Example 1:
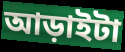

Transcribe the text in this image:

আড়াইটা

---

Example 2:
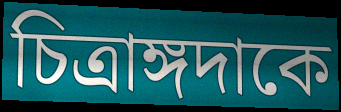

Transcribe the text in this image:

চিত্রাঙ্গদাকে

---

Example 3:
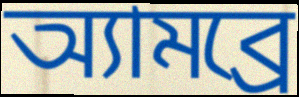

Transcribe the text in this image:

অ্যামব্রে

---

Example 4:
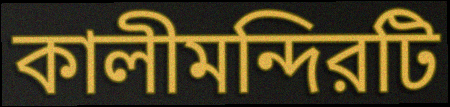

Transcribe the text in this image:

কালীমন্দিরটি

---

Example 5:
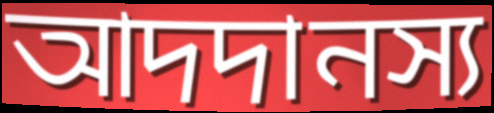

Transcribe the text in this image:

আদদানস্য